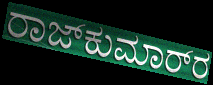
ರಾಜ್‌ಕುಮಾರ್‌ರ